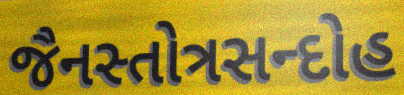
જૈનસ્તોત્રસન્દોહ